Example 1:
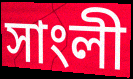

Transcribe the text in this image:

সাংলী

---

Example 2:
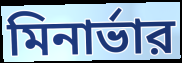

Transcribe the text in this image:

মিনার্ভার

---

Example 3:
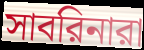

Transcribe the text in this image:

সাবরিনারা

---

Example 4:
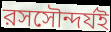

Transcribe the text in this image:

রসসৌন্দর্যই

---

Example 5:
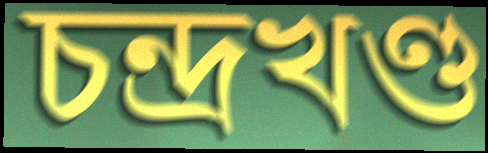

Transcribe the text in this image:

চন্দ্রখণ্ড